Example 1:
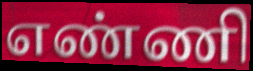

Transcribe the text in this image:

எண்ணி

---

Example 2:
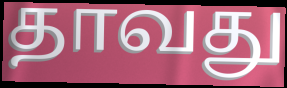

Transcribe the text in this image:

தாவது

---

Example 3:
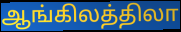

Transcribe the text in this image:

ஆங்கிலத்திலா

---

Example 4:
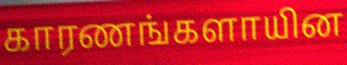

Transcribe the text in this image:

காரணங்களாயின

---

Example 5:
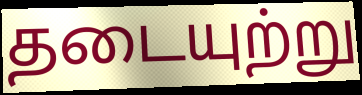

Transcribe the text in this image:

தடையுற்று